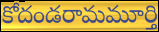
కోదండరామమూర్తి